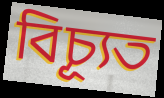
বিচ্যূত